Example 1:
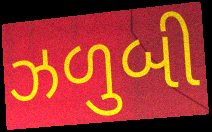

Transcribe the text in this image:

ઝળુબી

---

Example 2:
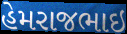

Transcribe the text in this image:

હેમરાજભાઇ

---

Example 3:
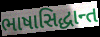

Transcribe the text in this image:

ભાષાસિદ્ધાન્ત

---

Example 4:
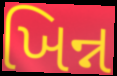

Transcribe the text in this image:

ખિન્ન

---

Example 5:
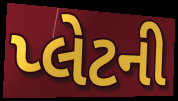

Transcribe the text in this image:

પ્લેટની